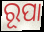
ରୂପା